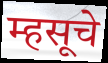
म्हसूचे